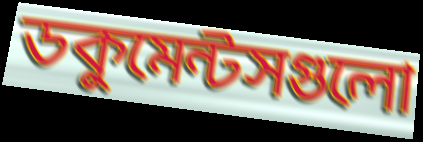
ডকুমেন্টসগুলো